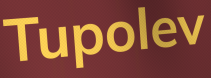
Tupolev